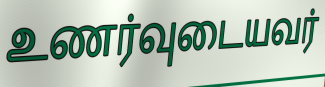
உணர்வுடையவர்